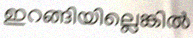
ഇറങ്ങിയില്ലെങ്കിൽ